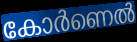
കോർണെൽ